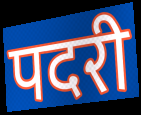
पदरी